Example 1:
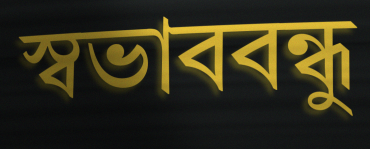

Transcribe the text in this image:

স্বভাববন্ধু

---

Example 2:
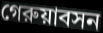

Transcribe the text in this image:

গেরুয়াবসন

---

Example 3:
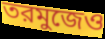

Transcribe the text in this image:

তরমুজেও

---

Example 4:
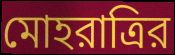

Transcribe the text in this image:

মোহরাত্রির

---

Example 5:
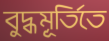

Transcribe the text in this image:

বুদ্ধমূর্তিতে